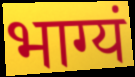
भाग्यं